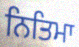
ਨਿਤਿਮਾ